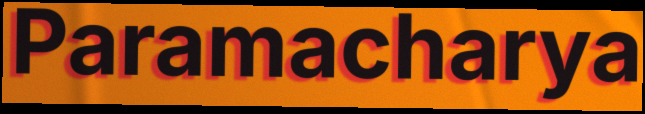
Paramacharya